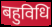
बहुविधि